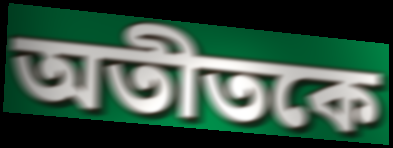
অতীতকে